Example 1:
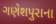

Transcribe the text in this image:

ગણેશપુરાના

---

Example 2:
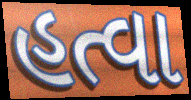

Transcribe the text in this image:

હત્વા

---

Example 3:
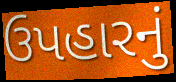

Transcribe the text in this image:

ઉપહારનું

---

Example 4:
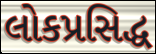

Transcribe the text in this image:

લોકપ્રસિદ્ધ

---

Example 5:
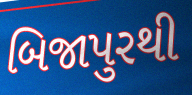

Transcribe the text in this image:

બિજાપુરથી